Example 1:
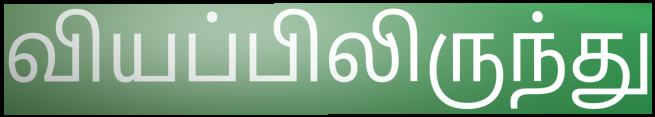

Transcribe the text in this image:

வியப்பிலிருந்து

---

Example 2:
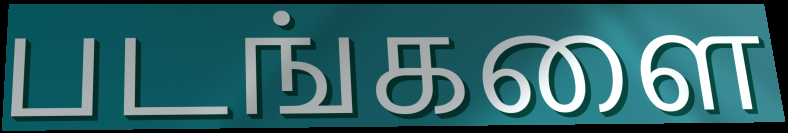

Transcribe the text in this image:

படங்களை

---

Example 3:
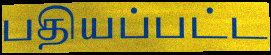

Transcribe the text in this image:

பதியப்பட்ட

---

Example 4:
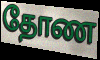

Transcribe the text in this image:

தோண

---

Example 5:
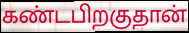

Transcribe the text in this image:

கண்டபிறகுதான்